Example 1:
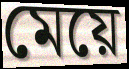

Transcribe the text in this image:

মেয়ে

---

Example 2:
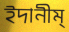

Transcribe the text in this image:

ইদানীম্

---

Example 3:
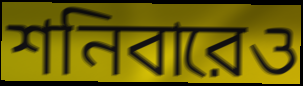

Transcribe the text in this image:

শনিবারেও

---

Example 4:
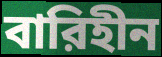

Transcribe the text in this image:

বারিহীন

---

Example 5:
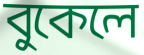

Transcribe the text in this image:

বুকেলে